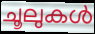
ചൂലുകൾ